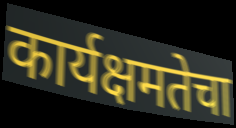
कार्यक्षमतेचा